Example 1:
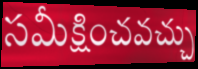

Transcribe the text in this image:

సమీక్షించవచ్చు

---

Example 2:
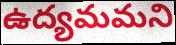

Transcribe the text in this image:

ఉద్యమమని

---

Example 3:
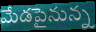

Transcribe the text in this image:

మేడపైనున్న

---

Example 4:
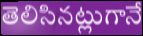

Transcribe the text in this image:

తెలిసినట్లుగానే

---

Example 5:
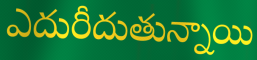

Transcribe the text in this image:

ఎదురీదుతున్నాయి